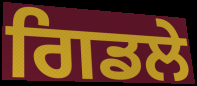
ਗਿਡਲੇ